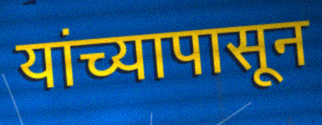
यांच्यापासून